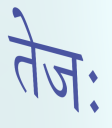
तेजः